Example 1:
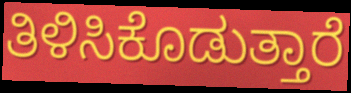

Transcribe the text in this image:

ತಿಳಿಸಿಕೊಡುತ್ತಾರೆ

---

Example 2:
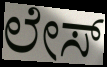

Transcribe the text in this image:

ಲೇಸ್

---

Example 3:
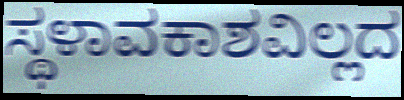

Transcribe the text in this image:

ಸ್ಥಳಾವಕಾಶವಿಲ್ಲದ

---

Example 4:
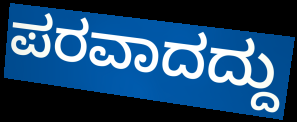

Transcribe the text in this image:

ಪರವಾದದ್ದು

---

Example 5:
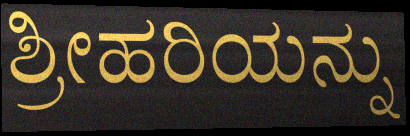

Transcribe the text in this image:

ಶ್ರೀಹರಿಯನ್ನು